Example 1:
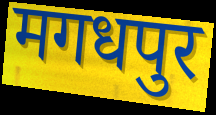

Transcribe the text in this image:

मगधपुर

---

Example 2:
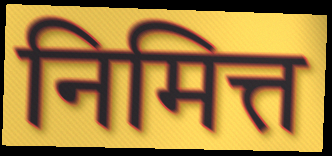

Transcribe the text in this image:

निमित्त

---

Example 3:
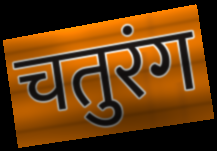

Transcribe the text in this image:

चतुरंग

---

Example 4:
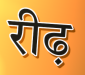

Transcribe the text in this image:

रीढ़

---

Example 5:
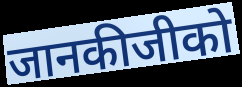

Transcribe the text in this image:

जानकीजीको